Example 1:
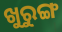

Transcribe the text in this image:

ଖୁରୁଙ୍ଗ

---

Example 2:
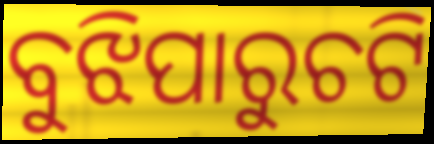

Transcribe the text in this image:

ବୁଝିପାରୁଚଟି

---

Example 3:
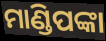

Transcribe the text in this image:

ମାଣ୍ଡିପଙ୍କା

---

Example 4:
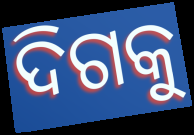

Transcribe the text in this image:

ଦିଗକୁ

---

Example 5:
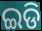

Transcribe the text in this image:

ଇଡି